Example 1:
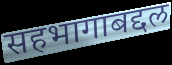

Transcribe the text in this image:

सहभागाबद्दल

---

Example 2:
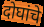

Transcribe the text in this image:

दोघांचे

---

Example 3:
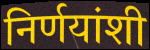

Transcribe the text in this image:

निर्णयांशी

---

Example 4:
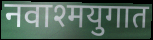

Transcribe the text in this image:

नवाश्मयुगात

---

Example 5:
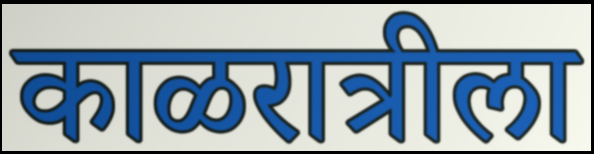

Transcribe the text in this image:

काळरात्रीला